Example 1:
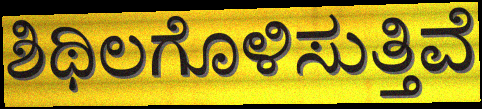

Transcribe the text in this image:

ಶಿಥಿಲಗೊಳಿಸುತ್ತಿವೆ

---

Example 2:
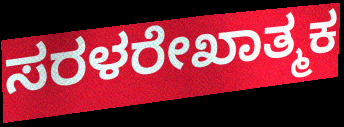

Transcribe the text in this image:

ಸರಳರೇಖಾತ್ಮಕ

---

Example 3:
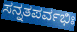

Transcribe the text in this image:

ಸನ್ನತಪರ್ವಭಿಃ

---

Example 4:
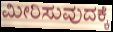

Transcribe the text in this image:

ಮೀರಿಸುವುದಕ್ಕೆ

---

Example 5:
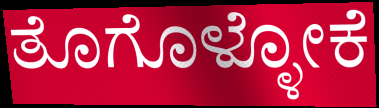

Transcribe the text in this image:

ತೊಗೊಳ್ಳೋಕೆ